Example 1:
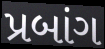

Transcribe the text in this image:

પ્રબાંગ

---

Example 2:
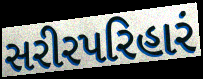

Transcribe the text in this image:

સરીરપરિહારં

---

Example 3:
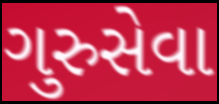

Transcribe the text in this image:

ગુરુસેવા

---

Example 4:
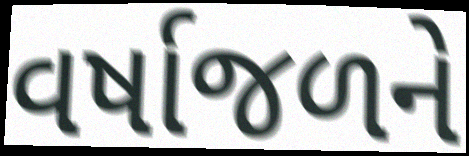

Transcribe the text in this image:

વર્ષાજળને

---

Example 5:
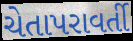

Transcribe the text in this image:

ચેતાપરાવર્તી